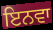
ਇਨਵਾ